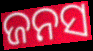
ଜନସ